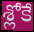
శ్లోకే